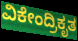
ವಿಕೇಂದ್ರಿಕೃತ